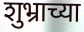
शुभ्राच्या